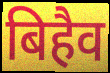
बिहैव